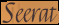
Seerat